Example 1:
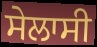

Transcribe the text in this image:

ਸੇਲਾਸੀ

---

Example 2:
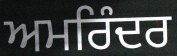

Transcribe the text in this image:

ਅਮਰਿੰਦਰ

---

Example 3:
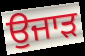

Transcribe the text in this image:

ਉਜਾੜ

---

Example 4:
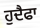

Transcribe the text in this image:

ਹੁਦੈਫਾ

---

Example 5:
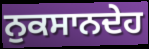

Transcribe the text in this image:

ਨੁਕਸਾਨਦੇਹ